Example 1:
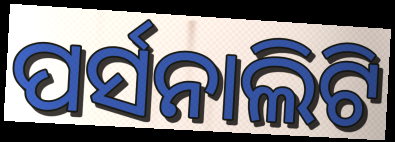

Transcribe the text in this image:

ପର୍ସନାଲିଟି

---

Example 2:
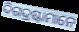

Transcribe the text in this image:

ଦିଗଦ୍ରଷ୍ଟାମାନେ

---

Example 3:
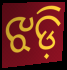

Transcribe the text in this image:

ଝଡ଼ି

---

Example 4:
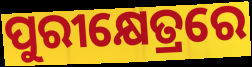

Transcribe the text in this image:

ପୁରୀକ୍ଷେତ୍ରରେ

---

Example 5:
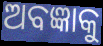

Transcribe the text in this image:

ଅବଜ୍ଞାକୁ